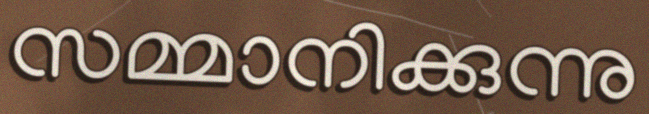
സമ്മാനിക്കുന്നു